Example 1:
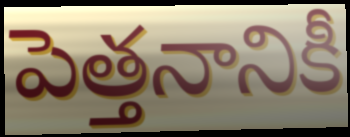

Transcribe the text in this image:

పెత్తనానికీ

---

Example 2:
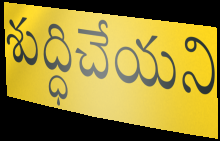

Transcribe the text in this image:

శుద్ధిచేయని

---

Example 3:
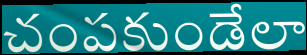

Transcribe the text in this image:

చంపకుండేలా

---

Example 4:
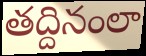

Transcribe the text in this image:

తద్దినంలా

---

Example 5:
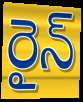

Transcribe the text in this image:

రైన్